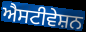
ਐਸਟੀਵੇਸ਼ਨ